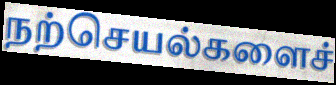
நற்செயல்களைச்